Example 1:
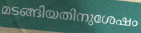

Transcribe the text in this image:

മടങ്ങിയതിനുശേഷം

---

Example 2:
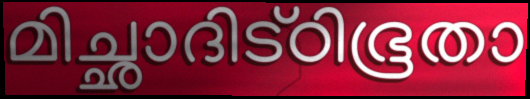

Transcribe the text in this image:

മിച്ഛാദിട്ഠിഭൂതാ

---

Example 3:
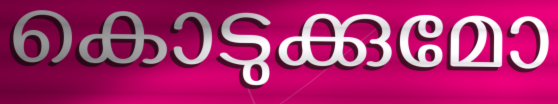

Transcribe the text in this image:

കൊടുക്കുമോ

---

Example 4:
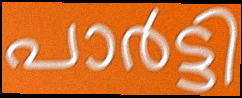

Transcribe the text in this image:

പാർട്ടി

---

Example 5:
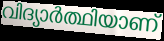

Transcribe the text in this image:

വിദ്യാർത്ഥിയാണ്